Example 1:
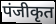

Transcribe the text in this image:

पंजीकृत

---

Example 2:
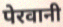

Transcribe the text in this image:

पेरवानी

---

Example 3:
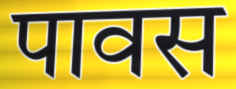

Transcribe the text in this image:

पावस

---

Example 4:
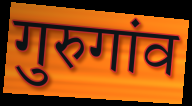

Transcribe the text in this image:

गुरुगांव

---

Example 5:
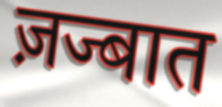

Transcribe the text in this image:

ज़ज्बात